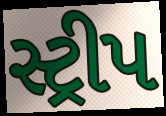
સ્ટ્રીપ